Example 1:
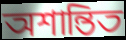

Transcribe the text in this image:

অশান্তিত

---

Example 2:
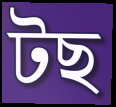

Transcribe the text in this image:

টছ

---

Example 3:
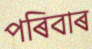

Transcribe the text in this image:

পৰিবাৰ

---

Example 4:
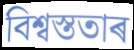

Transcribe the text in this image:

বিশ্বস্ততাৰ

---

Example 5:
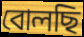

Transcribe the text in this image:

বোলছি